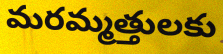
మరమ్మత్తులకు